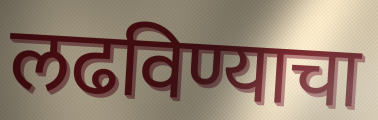
लढविण्याचा